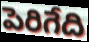
పెరిగేది